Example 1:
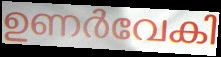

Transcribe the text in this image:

ഉണർവേകി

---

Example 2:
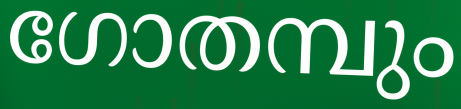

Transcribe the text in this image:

ഗോതമ്പും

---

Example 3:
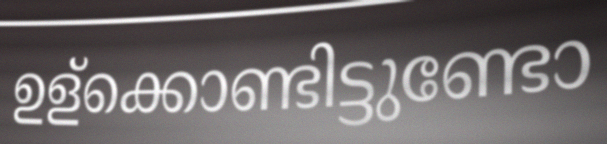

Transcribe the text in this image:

ഉള്ക്കൊണ്ടിട്ടുണ്ടോ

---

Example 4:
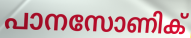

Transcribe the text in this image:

പാനസോണിക്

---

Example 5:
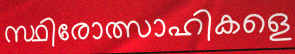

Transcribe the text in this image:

സ്ഥിരോത്സാഹികളെ